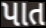
પાત